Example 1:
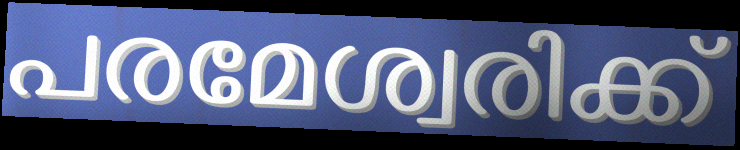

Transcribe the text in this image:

പരമേശ്വരിക്ക്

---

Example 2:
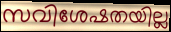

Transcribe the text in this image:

സവിശേഷതയില്ല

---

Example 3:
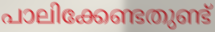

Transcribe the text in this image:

പാലിക്കേണ്ടതുണ്ട്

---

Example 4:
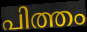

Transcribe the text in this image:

പിത്തം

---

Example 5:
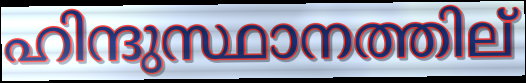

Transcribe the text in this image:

ഹിന്ദുസ്ഥാനത്തില്